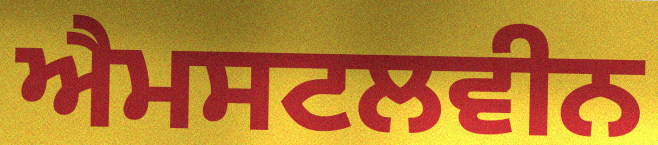
ਐਮਸਟਲਵੀਨ